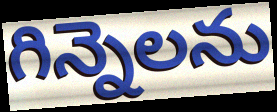
గిన్నెలను